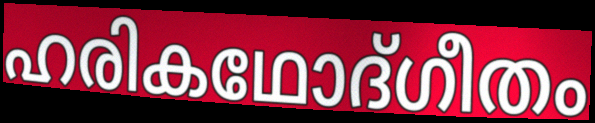
ഹരികഥോദ്ഗീതം